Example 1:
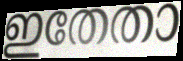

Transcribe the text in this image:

ഇതേതാ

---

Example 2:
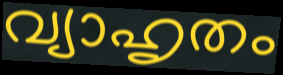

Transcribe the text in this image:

വ്യാഹൃതം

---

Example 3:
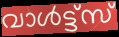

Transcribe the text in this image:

വാൾട്ട്സ്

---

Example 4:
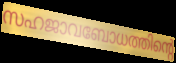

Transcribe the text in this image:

സഹജാവബോധത്തിന്റെ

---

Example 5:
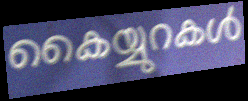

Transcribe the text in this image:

കൈയ്യുറകൾ